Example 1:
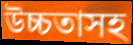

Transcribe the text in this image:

উচ্চতাসহ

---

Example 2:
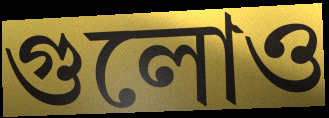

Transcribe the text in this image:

গুলোও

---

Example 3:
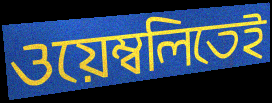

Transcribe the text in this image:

ওয়েম্বলিতেই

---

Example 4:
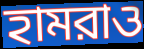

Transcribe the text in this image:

হামরাও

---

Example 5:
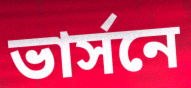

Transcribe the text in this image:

ভার্সনে